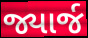
જ્યાર્જ